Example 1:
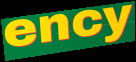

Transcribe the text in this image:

ency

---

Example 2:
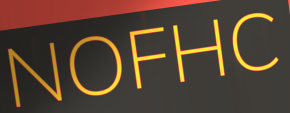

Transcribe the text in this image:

NOFHC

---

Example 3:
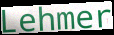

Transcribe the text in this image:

Lehmer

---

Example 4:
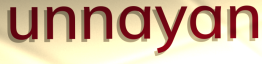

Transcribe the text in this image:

unnayan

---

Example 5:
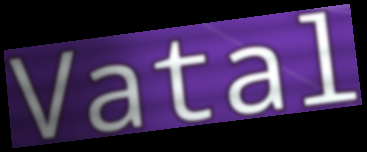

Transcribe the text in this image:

Vatal